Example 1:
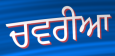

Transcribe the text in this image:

ਚਵਰੀਆ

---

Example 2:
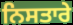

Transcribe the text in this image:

ਨਿਸਤਾਰੇ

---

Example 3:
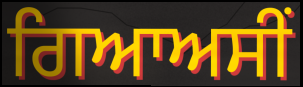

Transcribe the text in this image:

ਗਿਆਅਸੀਂ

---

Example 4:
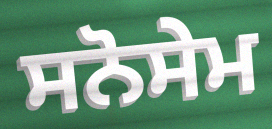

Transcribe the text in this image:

ਸਨੋਸੇਮ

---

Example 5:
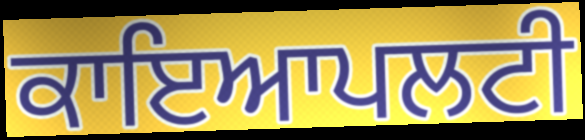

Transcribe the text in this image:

ਕਾਇਆਪਲਟੀ